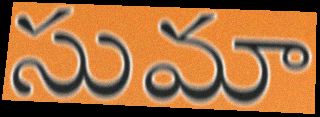
సుమా